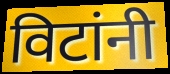
विटांनी